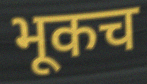
भूकच